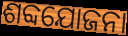
ଶବ୍ଦଯୋଜନା